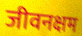
जीवनक्षम